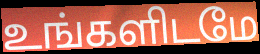
உங்களிடமே